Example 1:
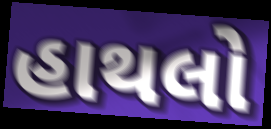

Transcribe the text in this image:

હાથલો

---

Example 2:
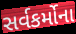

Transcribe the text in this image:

સર્વકર્મોના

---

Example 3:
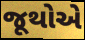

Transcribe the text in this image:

જૂથોએ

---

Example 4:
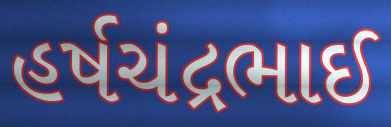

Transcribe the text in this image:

હર્ષચંદ્રભાઈ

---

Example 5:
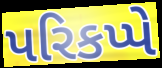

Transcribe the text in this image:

પરિકપ્પે